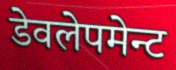
डेवलेपमेन्ट